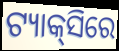
ଟ୍ୟାକ୍‍ସିରେ